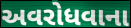
અવરોધવાના